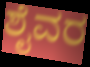
ಶೈವರ